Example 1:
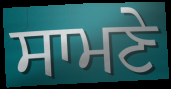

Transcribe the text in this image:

ਸਾਮਣੇ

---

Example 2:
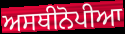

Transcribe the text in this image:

ਅਸਥੀਨੋਪੀਆ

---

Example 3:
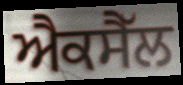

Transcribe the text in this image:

ਐਕਸੈੱਲ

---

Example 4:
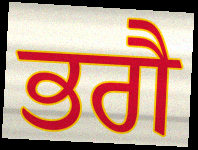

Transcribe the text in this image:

ਭਗੈ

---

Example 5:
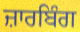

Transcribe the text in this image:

ਜ਼ਾਰਬਿੰਗ